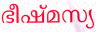
ഭീഷ്മസ്യ